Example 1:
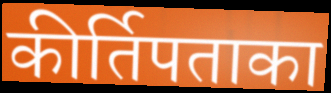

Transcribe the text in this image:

कीर्तिपताका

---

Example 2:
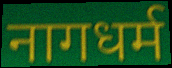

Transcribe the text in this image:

नागधर्म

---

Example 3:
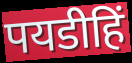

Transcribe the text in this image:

पयडीहिं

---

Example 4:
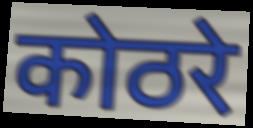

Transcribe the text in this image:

कोठरे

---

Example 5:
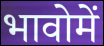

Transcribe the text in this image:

भावोमें